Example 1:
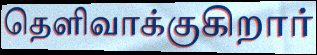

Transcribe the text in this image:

தெளிவாக்குகிறார்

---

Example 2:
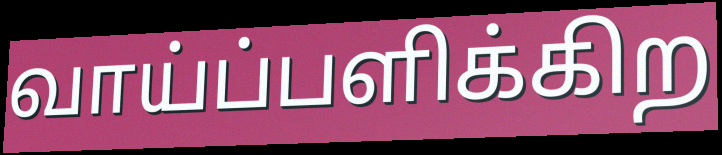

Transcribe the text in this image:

வாய்ப்பளிக்கிற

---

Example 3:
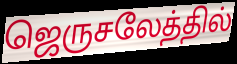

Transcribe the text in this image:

ஜெருசலேத்தில்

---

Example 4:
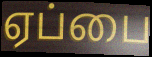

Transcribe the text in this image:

ஏப்பை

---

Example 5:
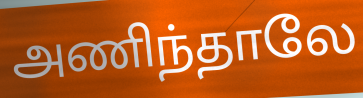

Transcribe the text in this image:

அணிந்தாலே